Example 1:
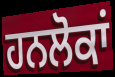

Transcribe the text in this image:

ਹਨਲੋਕਾਂ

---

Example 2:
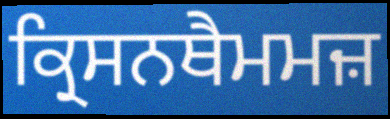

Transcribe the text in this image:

ਕ੍ਰਿਸਨਥੈਮਮਜ਼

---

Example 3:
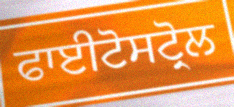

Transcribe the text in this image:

ਫਾਈਟੋਸਟ੍ਰੋਲ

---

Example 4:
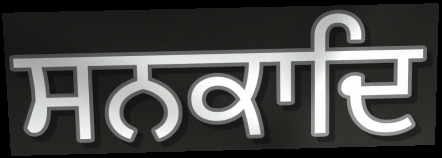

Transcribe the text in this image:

ਸਨਕਾਦਿ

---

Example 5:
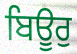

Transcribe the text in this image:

ਬਿਊਰੁ